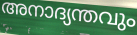
അനാദ്യന്തവും